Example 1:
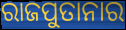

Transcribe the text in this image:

ରାଜପୁତାନାର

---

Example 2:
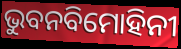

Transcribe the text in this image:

ଭୁବନବିମୋହିନୀ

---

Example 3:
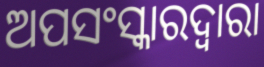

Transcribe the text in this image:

ଅପସଂସ୍କାରଦ୍ୱାରା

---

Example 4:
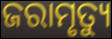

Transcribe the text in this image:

ଜରାମୃତ୍ୟୁ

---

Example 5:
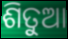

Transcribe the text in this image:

ଶିତୁଆ